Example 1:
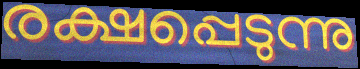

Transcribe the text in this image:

രക്ഷപ്പെടുന്നു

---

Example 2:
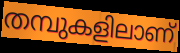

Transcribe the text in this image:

തമ്പുകളിലാണ്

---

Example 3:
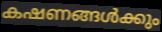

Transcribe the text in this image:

കഷണങ്ങൾക്കും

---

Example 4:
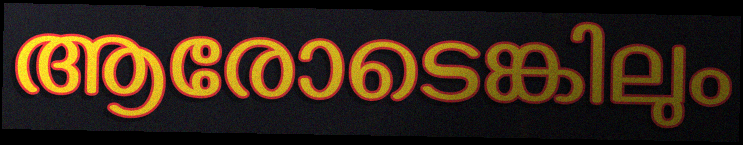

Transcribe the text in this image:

ആരോടെങ്കിലും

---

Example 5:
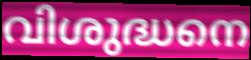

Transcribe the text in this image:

വിശുദ്ധനെ